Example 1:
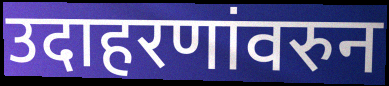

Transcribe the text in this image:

उदाहरणांवरुन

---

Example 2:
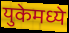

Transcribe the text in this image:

युकेमध्ये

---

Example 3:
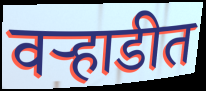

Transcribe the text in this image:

वऱ्हाडीत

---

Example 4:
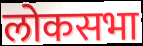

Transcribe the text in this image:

लोकसभा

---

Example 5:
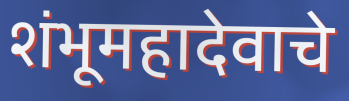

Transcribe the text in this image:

शंभूमहादेवाचे